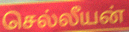
செல்லீயன்